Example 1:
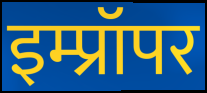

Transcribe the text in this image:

इम्प्रॉपर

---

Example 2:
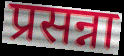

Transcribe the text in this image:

प्रसन्ना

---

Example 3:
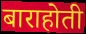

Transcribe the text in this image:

बाराहोती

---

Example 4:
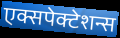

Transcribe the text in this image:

एक्सपेक्टेशन्स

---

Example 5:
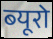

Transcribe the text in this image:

ब्‍यूरो